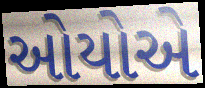
ઓયોએ